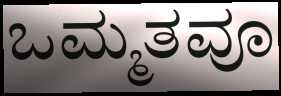
ಒಮ್ಮತವೂ